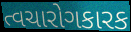
ત્વચારોગકારક